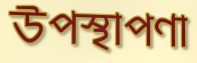
উপস্থাপণা